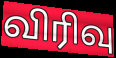
விரிவு